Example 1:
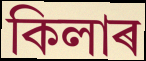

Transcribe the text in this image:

কিলাৰ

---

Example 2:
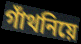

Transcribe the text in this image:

গাঁথনিয়ে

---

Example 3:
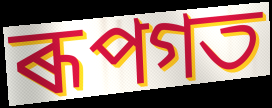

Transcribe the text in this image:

ৰূপগত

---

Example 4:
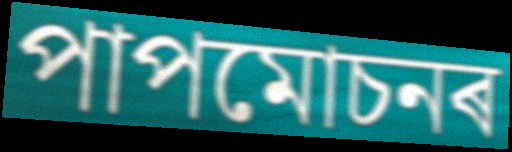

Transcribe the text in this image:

পাপমোচনৰ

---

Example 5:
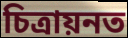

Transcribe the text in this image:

চিত্ৰায়নত